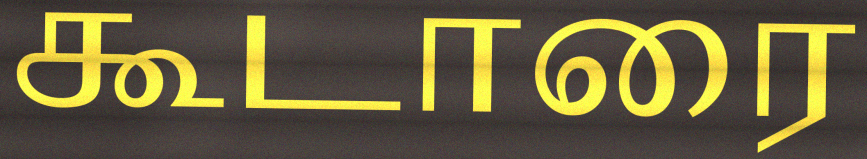
கூடாரை